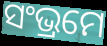
ସଂଭ୍ରମେ